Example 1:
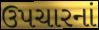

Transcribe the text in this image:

ઉપચારનાં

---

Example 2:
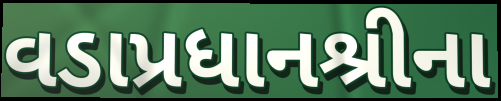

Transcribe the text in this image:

વડાપ્રધાનશ્રીના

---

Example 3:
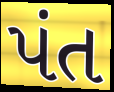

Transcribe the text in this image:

પંત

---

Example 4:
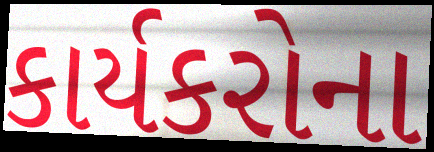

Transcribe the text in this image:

કાર્યકરોના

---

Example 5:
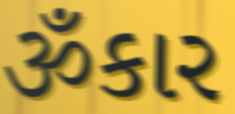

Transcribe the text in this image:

ૐકાર